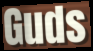
Guds